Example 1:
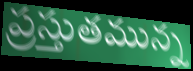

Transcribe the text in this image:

ప్రస్తుతమున్న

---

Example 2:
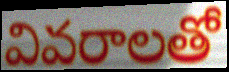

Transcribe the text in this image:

వివరాలతో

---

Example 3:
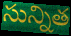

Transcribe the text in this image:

సున్నిత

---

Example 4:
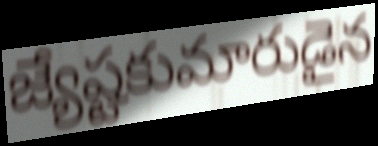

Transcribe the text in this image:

జ్యేష్టకుమారుడైన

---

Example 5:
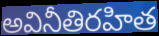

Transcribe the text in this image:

అవినీతిరహిత